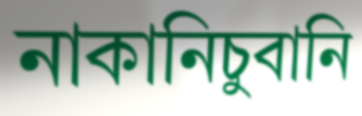
নাকানিচুবানি